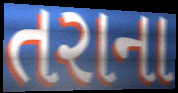
તરાના